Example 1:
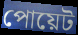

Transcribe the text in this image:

পোয়েট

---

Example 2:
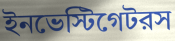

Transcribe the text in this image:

ইনভেস্টিগেটরস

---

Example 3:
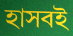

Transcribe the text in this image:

হাসবই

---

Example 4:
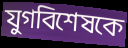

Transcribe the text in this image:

যুগবিশেষকে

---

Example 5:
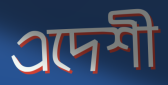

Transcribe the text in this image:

এদেশী